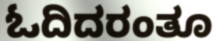
ಓದಿದರಂತೂ